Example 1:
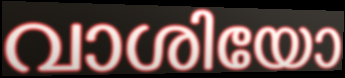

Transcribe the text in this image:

വാശിയോ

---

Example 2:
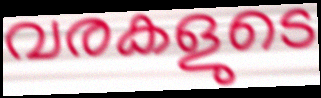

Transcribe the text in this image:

വരകളുടെ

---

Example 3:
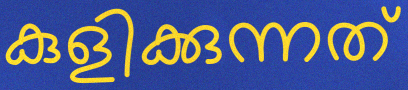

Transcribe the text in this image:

കുളിക്കുന്നത്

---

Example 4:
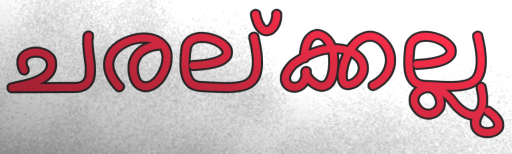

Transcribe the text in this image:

ചരല്ക്കല്ലു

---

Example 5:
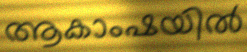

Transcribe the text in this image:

ആകാംഷയിൽ